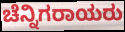
ಚೆನ್ನಿಗರಾಯರು